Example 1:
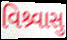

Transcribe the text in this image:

વિશ્ર્વાસુ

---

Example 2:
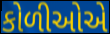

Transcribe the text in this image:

કોળીઓએ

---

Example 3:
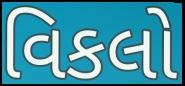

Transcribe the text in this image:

વિકલો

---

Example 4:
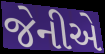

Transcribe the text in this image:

જેનીએ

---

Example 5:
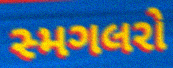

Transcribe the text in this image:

સ્મગલરો